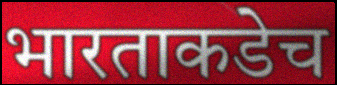
भारताकडेच